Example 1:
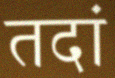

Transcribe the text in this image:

तदां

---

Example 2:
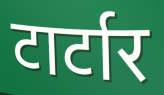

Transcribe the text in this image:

टार्टार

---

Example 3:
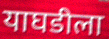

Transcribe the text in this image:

याघडीला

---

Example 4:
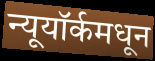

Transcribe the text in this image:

न्यूयॉर्कमधून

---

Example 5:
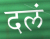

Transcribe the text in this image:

दलं